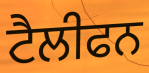
ਟੈਲੀਫਨ